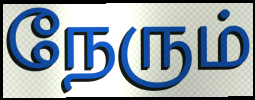
நேரும்